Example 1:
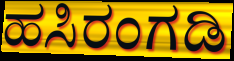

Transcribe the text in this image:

ಹಸಿರಂಗಡಿ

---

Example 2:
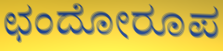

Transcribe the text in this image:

ಛಂದೋರೂಪ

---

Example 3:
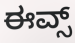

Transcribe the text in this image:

ಈವ್ಸ್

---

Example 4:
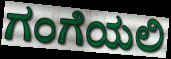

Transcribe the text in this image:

ಗಂಗೆಯಲಿ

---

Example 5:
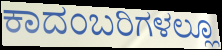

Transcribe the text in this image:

ಕಾದಂಬರಿಗಳಲ್ಲೂ